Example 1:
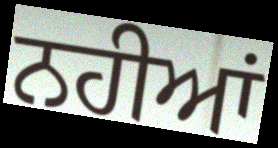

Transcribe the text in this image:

ਨਹੀਆਂ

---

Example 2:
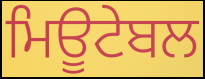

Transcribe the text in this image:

ਮਿਊਟੇਬਲ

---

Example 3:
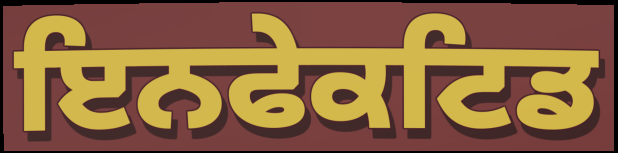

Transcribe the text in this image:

ਇਨਫੇਕਟਿਡ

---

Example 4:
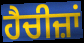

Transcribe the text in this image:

ਹੈਚੀਜ਼ਾਂ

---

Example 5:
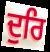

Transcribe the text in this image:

ਦੁਰਿ